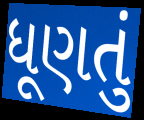
ધૂણતું